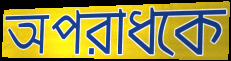
অপরাধকে